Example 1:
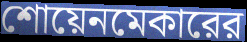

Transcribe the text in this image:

শোয়েনমেকারের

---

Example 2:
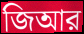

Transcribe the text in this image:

জিআর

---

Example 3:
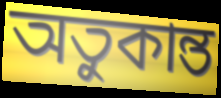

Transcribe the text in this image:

অতুকান্ত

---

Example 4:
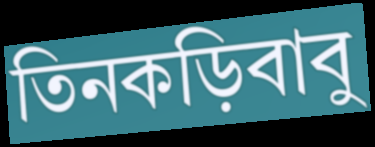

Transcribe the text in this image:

তিনকড়িবাবু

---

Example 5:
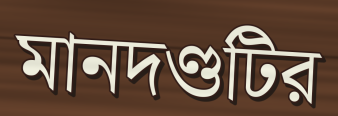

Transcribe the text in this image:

মানদণ্ডটির